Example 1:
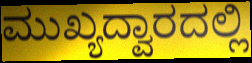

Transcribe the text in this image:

ಮುಖ್ಯದ್ವಾರದಲ್ಲಿ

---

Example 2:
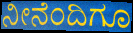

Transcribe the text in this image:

ನೀನೆಂದಿಗೂ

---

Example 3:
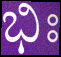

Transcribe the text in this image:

ಭಿಃ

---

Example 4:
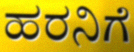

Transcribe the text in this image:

ಹರನಿಗೆ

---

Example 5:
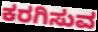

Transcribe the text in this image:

ಕರಗಿಸುವ